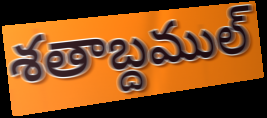
శతాబ్దముల్